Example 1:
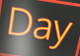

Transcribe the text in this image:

Day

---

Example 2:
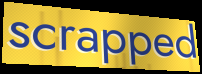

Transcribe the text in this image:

scrapped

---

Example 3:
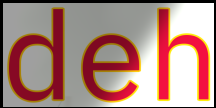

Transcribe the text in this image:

deh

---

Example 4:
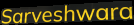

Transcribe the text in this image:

Sarveshwara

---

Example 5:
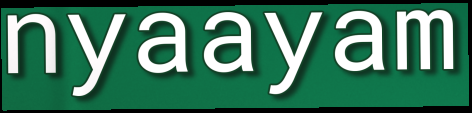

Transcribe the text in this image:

nyaayam